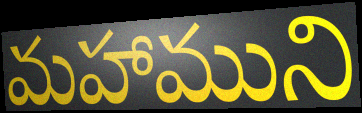
మహాముని